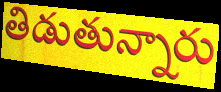
తిడుతున్నారు